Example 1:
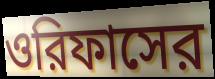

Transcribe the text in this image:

ওরিফাসের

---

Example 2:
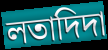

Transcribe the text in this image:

লতাদিদা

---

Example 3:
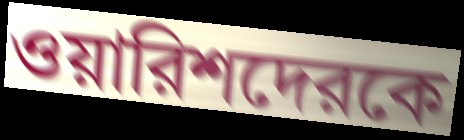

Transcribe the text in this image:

ওয়ারিশদেরকে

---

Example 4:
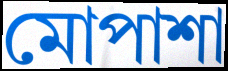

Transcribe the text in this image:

মোপাশা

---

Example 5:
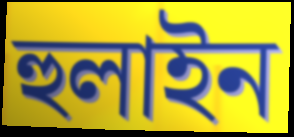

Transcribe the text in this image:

হুলাইন